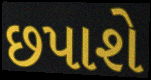
છપાશે